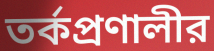
তর্কপ্রণালীর